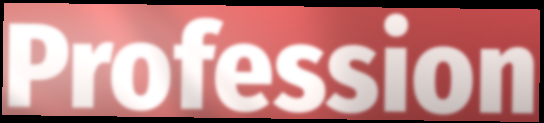
Profession